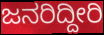
ಜನರಿದ್ದೀರಿ